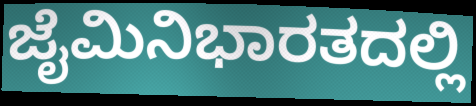
ಜೈಮಿನಿಭಾರತದಲ್ಲಿ